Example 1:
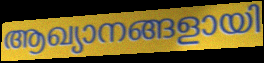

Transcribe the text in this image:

ആഖ്യാനങ്ങളായി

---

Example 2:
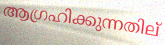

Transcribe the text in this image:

ആഗ്രഹിക്കുന്നതില്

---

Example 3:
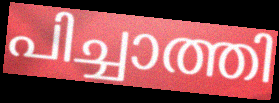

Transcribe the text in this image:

പിച്ചാത്തി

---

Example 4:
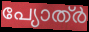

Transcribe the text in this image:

പ്യോത്ർ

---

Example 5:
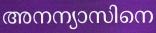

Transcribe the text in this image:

അനന്യാസിനെ